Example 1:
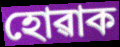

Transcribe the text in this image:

হোৱাক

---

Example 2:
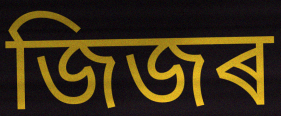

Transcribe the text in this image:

জিজৰ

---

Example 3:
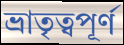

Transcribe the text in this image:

ভ্ৰাতৃত্বপূৰ্ণ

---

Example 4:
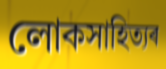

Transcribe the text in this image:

লোকসাহিত্যৰ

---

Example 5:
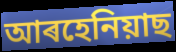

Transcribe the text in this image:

আৰহেনিয়াছ